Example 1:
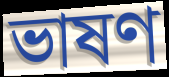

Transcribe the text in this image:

ভাষণ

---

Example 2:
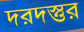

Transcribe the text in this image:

দরদস্তুর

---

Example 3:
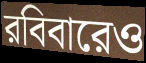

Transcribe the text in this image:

রবিবারেও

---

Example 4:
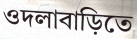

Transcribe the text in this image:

ওদলাবাড়িতে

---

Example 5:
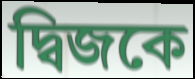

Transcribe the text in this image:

দ্বিজকে